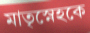
মাতৃস্নেহকে